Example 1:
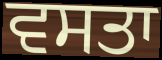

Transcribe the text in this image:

ਵਸਤਾ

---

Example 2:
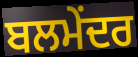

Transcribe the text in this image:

ਬਲਮੇਂਦਰ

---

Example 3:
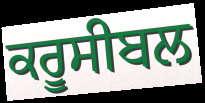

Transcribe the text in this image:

ਕਰੂਸੀਬਲ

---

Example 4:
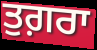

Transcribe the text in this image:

ਤੁਗ਼ਰਾ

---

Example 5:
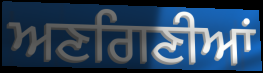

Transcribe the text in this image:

ਅਣਗਿਣੀਆਂ